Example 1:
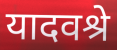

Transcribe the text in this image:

यादवश्रे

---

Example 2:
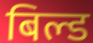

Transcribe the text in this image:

बिल्ड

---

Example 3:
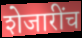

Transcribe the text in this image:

शेजारींच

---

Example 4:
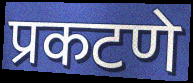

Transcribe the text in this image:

प्रकटणे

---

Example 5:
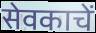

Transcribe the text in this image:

सेवकाचें